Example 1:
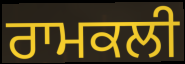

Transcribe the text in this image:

ਰਾਮਕਲੀ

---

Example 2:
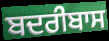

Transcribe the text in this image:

ਬਦਰੀਬਾਸ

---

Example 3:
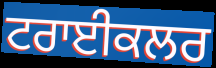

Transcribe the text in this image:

ਟਰਾਈਕਲਰ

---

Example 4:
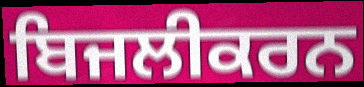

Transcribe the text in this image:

ਬਿਜਲੀਕਰਨ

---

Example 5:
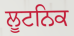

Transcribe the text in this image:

ਲੂਟਨਿਕ